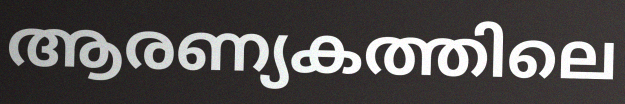
ആരണ്യകത്തിലെ